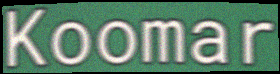
Koomar